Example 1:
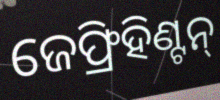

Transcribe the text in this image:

ଜେଫ୍ରିହିଣ୍ଟନ୍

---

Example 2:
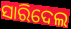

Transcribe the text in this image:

ସାରିଦେଲ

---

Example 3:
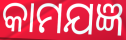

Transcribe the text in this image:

କାମଯଜ୍ଞ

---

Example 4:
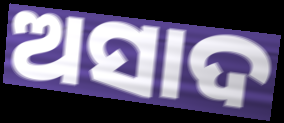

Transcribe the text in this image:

ଅସାଦ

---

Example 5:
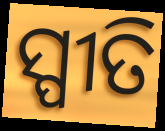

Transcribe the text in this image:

ସ୍ପୀତି